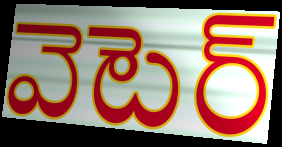
వెటెర్